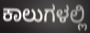
ಕಾಲುಗಳಲ್ಲಿ